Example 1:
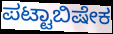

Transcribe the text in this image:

ಪಟ್ಟಾಬಿಷೇಕ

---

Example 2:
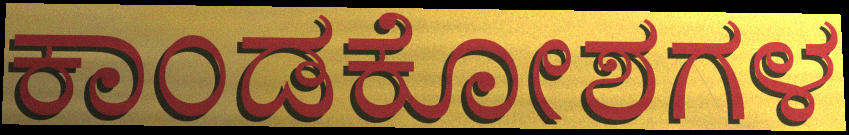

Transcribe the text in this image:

ಕಾಂಡಕೋಶಗಳ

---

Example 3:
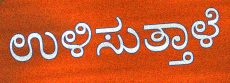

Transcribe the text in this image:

ಉಳಿಸುತ್ತಾಳೆ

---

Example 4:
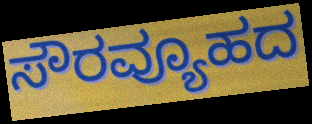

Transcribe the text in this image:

ಸೌರವ್ಯೂಹದ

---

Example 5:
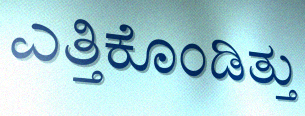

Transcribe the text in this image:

ಎತ್ತಿಕೊಂಡಿತ್ತು